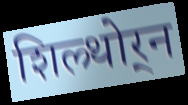
शिल्थोर्न